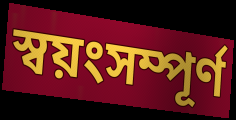
স্বয়ংসম্পূৰ্ণ